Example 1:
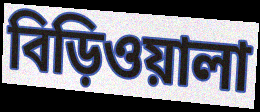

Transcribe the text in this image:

বিড়িওয়ালা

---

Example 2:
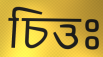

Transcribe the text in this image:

চিত্তঃ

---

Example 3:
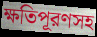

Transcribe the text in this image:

ক্ষতিপূরণসহ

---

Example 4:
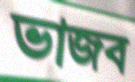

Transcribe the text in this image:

ভাজব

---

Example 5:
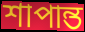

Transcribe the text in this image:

শাপান্ত